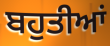
ਬਹੁਤੀਆਂ